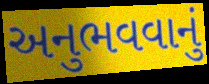
અનુભવવાનું